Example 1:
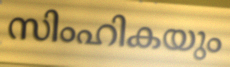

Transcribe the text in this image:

സിംഹികയും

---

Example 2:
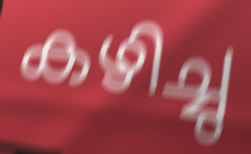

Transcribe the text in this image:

കഴിച്ചു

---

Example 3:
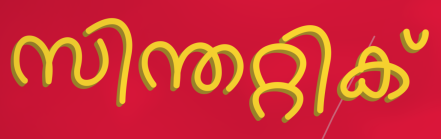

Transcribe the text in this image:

സിന്തറ്റിക്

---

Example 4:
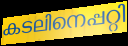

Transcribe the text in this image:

കടലിനെപ്പറ്റി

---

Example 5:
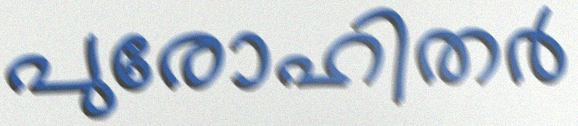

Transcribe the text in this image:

പുരോഹിതർ